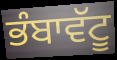
ਭੰਬਾਵੱਟੂ